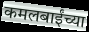
कमलबाईंच्या